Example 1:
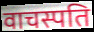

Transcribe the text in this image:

वाचस्पति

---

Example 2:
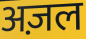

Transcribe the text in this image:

अज़ल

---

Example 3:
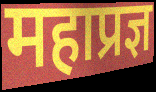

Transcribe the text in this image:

महाप्रज्ञ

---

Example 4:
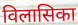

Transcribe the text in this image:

विलासिका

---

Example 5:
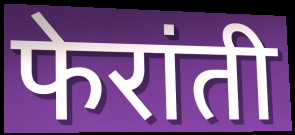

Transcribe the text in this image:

फेरांती